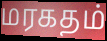
மரகதம்